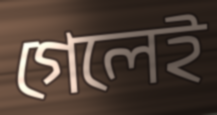
গেলেই